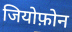
जियोफ़ोन